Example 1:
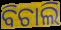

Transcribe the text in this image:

ବିଚାଲି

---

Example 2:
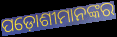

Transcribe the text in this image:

ପଡ଼ୋଶୀମାନଙ୍କର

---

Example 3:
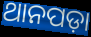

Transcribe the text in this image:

ଥାନପଡ଼ା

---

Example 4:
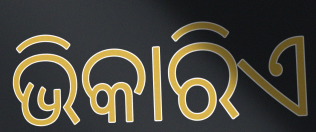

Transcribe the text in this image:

ଭିକାରିଏ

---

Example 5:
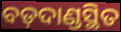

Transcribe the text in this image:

ବଡ଼ଦାଣ୍ଡସ୍ଥିତ